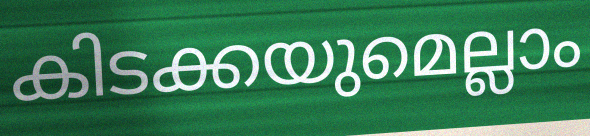
കിടക്കയുമെല്ലാം